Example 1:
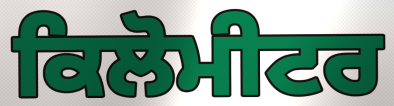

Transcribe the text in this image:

ਕਿਲੋਮੀਟਰ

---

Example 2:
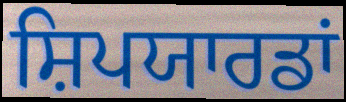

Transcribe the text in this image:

ਸ਼ਿਪਯਾਰਡਾਂ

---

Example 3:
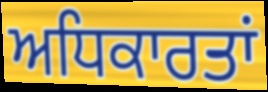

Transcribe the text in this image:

ਅਧਿਕਾਰਤਾਂ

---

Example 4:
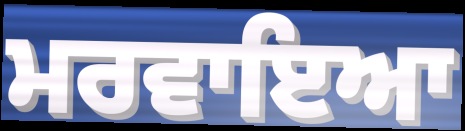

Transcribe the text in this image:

ਮਰਵਾਇਆ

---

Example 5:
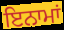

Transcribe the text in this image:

ਇਨਾਮਾਂ